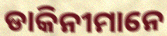
ଡାକିନୀମାନେ